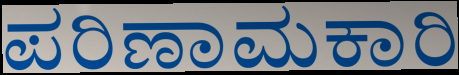
ಪರಿಣಾಮಕಾರಿ